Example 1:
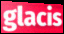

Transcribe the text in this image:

glacis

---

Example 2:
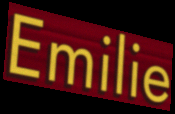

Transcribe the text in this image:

Emilie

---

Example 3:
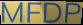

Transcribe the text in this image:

MFDP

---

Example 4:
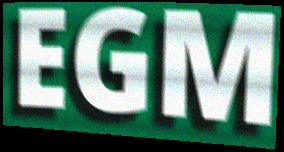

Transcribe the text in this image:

EGM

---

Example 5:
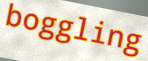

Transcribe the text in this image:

boggling